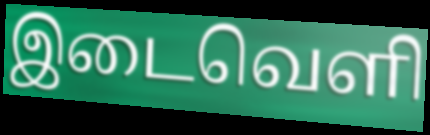
இடைவெளி